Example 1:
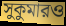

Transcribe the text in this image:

সুকুমারও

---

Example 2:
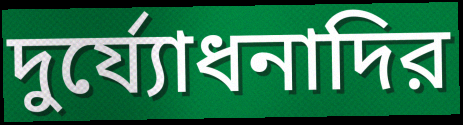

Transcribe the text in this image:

দুর্য্যোধনাদির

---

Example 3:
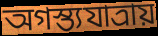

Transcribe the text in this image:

অগস্ত্যযাত্রায়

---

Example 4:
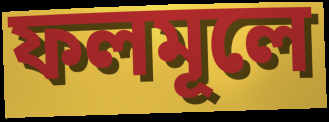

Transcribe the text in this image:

ফলমূলে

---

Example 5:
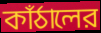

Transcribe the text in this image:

কাঁঠালের